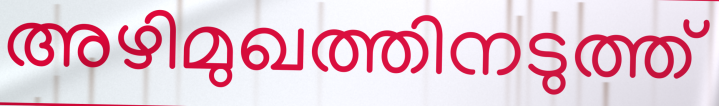
അഴിമുഖത്തിനടുത്ത്